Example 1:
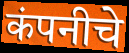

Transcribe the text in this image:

कंपनीचे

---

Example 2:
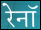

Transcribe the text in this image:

रेनॉ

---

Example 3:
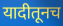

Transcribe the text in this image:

यादीतूनच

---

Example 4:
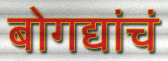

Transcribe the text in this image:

बोगद्यांचं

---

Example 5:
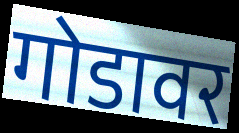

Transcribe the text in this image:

गोडावर